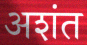
अशंत